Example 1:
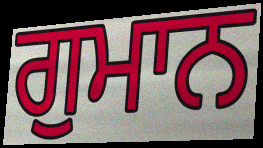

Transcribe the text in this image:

ਗੁਮਾਨ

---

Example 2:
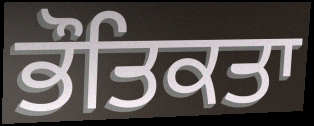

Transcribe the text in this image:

ਭੌਤਿਕਤਾ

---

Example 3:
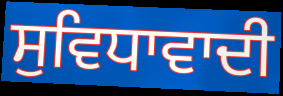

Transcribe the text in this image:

ਸੁਵਿਧਾਵਾਦੀ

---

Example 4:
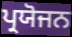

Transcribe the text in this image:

ਪ੍ਰਯੋਜਨ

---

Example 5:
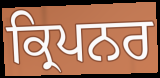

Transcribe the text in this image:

ਕ੍ਰਿਪਨਰ